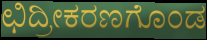
ಛಿದ್ರೀಕರಣಗೊಂಡ